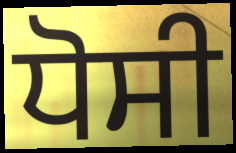
ਧੋਸੀ